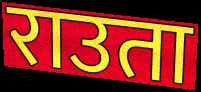
राउता